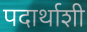
पदार्थाशी